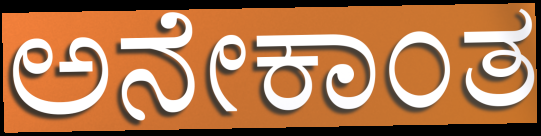
ಅನೇಕಾಂತ